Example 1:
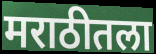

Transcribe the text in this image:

मराठीतला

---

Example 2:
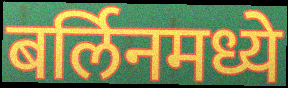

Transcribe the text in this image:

बर्लिनमध्ये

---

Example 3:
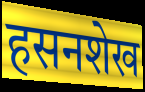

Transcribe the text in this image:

हसनशेख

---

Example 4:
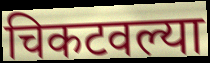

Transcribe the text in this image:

चिकटवल्या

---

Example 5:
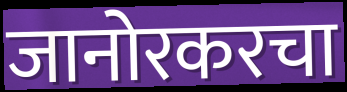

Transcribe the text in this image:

जानोरकरचा